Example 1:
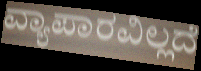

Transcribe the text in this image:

ವ್ಯಾಪಾರವಿಲ್ಲದೆ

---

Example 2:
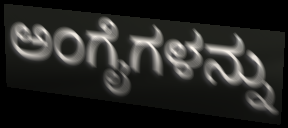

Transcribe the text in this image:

ಅಂಗೈಗಳನ್ನು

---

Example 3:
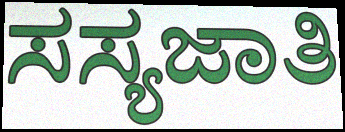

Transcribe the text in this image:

ಸಸ್ಯಜಾತಿ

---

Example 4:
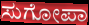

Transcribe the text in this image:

ಸುಗೋಪಾ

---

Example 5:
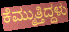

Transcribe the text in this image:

ಕೆಮ್ಮುತ್ತಿದ್ದಳು